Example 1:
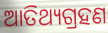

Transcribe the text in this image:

ଆତିଥ୍ୟଗ୍ରହଣ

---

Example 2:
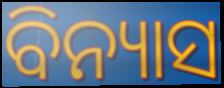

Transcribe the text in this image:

ବିନ୍ୟାସ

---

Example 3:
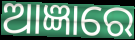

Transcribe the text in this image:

ଆଜ୍ଞାରେ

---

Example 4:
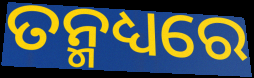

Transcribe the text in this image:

ତନ୍ମଧ୍ୟରେ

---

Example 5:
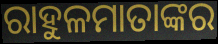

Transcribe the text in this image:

ରାହୁଳମାତାଙ୍କର